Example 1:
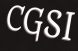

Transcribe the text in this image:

CGSI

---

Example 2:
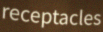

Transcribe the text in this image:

receptacles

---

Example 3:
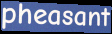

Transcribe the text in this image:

pheasant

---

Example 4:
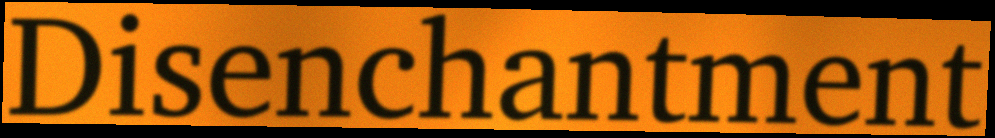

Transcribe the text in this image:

Disenchantment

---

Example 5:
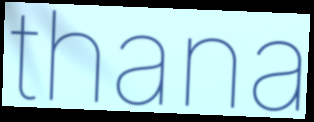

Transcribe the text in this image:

thana